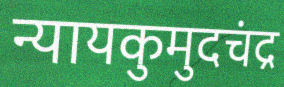
न्यायकुमुदचंद्र